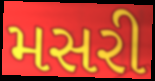
મસરી